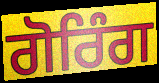
ਗੋਰਿੰਗ